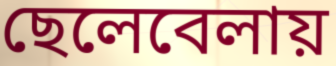
ছেলেবেলায়